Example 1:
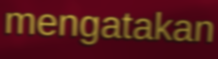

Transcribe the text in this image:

mengatakan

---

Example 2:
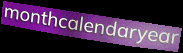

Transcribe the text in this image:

monthcalendaryear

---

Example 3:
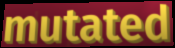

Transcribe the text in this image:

mutated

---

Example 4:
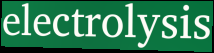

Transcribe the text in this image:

electrolysis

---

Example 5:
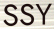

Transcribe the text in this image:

SSY